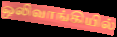
ஒலிவாங்கியில்